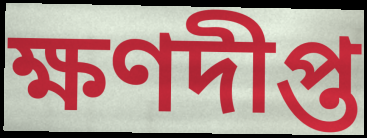
ক্ষণদীপ্ত